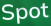
Spot